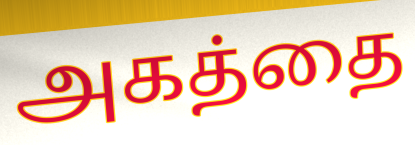
அகத்தை